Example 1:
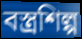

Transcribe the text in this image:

বস্ত্রশিল্প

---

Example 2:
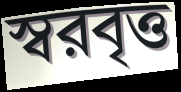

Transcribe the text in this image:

স্বরবৃত্ত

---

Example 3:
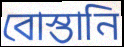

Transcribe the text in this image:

বোস্তানি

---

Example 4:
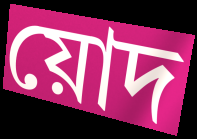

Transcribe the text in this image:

য়োদ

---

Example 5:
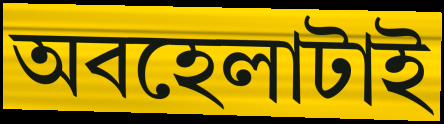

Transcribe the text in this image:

অবহেলাটাই